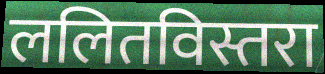
ललितविस्तरा